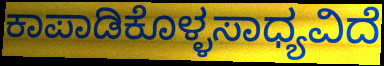
ಕಾಪಾಡಿಕೊಳ್ಳಸಾಧ್ಯವಿದೆ